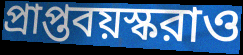
প্রাপ্তবয়স্করাও